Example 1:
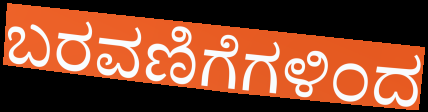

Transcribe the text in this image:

ಬರವಣಿಗೆಗಳಿಂದ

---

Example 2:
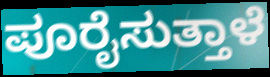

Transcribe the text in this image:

ಪೂರೈಸುತ್ತಾಳೆ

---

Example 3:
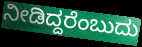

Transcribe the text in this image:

ನೀಡಿದ್ದರೆಂಬುದು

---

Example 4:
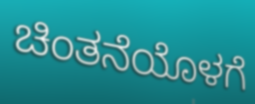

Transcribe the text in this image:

ಚಿಂತನೆಯೊಳಗೆ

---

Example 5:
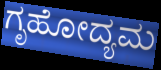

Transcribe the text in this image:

ಗೃಹೋದ್ಯಮ